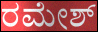
ರಮೇಶ್